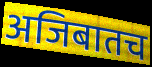
अजिबातच